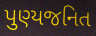
પુણ્યજનિત